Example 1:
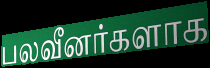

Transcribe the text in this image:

பலவீனர்களாக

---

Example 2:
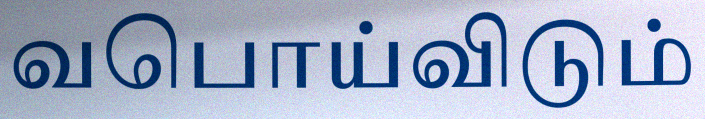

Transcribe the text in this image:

வபொய்விடும்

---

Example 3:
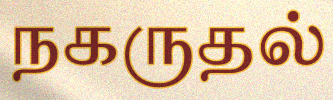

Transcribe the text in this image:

நகருதல்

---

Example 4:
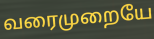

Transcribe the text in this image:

வரைமுறையே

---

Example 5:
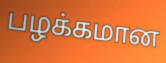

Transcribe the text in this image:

பழக்கமான